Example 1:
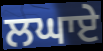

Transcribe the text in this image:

ਲਘਾਏ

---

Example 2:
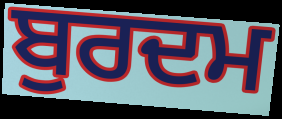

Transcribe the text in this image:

ਬੁਰਦਮ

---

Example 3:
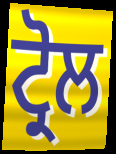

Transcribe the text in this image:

ਟ੍ਰੋਲ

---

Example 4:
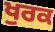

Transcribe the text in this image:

ਖੁਰਕ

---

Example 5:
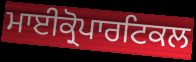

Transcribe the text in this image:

ਮਾਈਕ੍ਰੋਪਾਰਟਿਕਲ